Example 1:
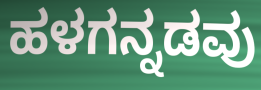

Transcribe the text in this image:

ಹಳಗನ್ನಡವು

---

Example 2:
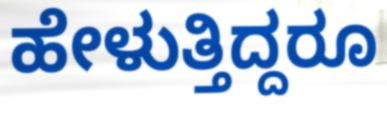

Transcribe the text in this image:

ಹೇಳುತ್ತಿದ್ದರೂ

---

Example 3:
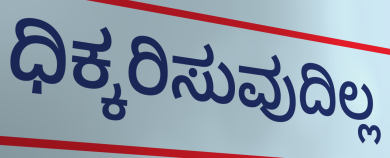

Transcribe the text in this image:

ಧಿಕ್ಕರಿಸುವುದಿಲ್ಲ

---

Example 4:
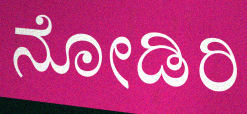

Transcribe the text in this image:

ನೋಡಿರಿ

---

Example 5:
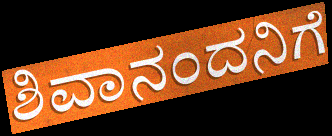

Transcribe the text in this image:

ಶಿವಾನಂದನಿಗೆ